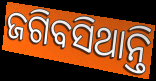
ଜଗିବସିଥାନ୍ତି